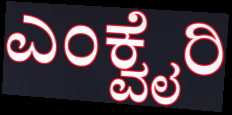
ಎಂಕ್ವೈರಿ